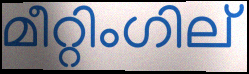
മീറ്റിംഗില്